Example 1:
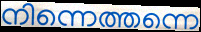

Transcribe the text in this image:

നിന്നെത്തന്നെ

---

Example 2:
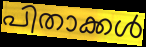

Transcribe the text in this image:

പിതാക്കൾ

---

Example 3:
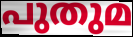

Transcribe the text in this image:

പുതുമ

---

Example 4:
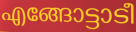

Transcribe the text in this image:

എങ്ങോട്ടാടീ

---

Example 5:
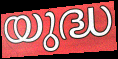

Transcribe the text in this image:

യുദ്ധ